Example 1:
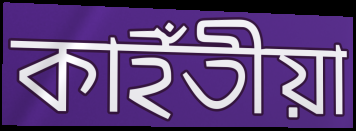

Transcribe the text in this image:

কাইঁতীয়া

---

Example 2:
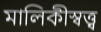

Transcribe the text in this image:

মালিকীস্বত্ত্ব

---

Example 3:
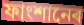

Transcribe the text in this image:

ফাংশানেৰ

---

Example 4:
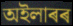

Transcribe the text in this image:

অইলাৰৰ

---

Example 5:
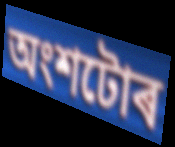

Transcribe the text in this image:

অংশটোৰ